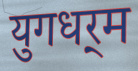
युगधर्म